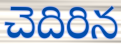
చెదిరిన